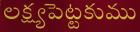
లక్ష్యపెట్టకుము